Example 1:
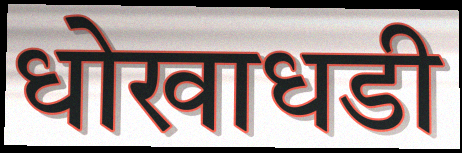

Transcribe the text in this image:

धोखाधडी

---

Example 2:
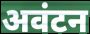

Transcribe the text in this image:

अवंटन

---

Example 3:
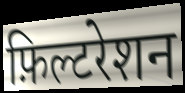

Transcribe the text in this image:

फ़िल्टरेशन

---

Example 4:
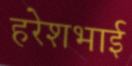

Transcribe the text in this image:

हरेशभाई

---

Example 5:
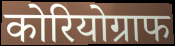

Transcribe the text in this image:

कोरियोग्राफ